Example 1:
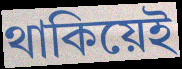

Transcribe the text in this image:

থাকিয়েই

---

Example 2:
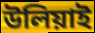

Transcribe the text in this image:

উলিয়াই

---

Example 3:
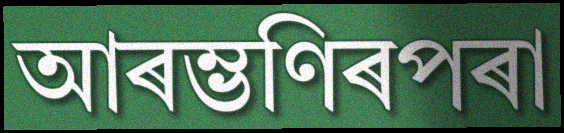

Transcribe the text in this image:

আৰম্ভণিৰপৰা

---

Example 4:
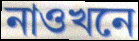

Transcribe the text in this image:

নাওখনে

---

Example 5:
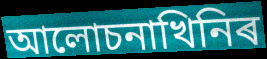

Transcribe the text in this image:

আলোচনাখিনিৰ